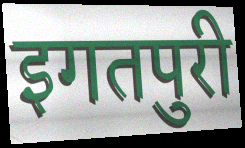
इगतपुरी